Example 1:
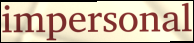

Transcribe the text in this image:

impersonal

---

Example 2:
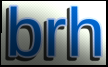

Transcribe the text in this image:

brh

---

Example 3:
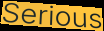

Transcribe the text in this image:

Serious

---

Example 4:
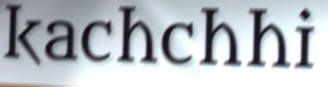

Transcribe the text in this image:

kachchhi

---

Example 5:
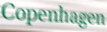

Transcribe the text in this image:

Copenhagen